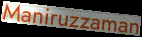
Maniruzzaman